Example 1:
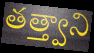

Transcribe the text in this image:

తత్త్వాని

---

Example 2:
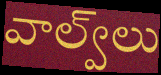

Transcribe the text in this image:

వాల్వ్‌లు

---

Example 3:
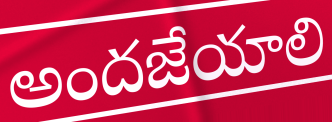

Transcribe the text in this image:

అందజేయాలి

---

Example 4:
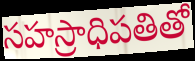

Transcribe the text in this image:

సహస్రాధిపతితో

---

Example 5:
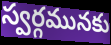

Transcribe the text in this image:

స్వర్గమునకు